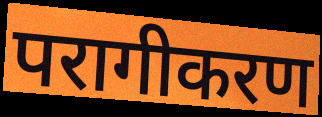
परागीकरण